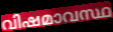
വിഷമാവസ്ഥ